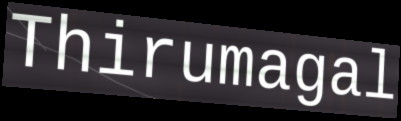
Thirumagal